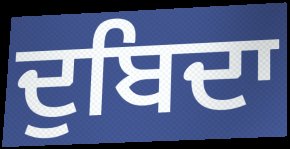
ਦੁਬਿਦਾ